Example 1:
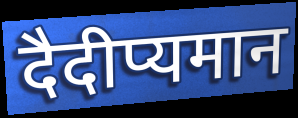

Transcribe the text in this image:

दैदीप्यमान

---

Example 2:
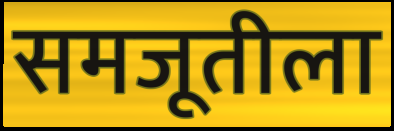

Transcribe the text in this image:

समजूतीला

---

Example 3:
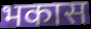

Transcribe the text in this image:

भकास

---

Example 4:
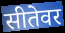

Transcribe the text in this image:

सीतेवर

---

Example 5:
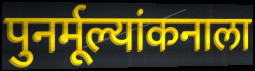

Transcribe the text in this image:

पुनर्मूल्यांकनाला